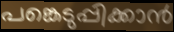
പങ്കെടുപ്പിക്കാൻ